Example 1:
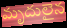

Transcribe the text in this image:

మృదులైన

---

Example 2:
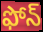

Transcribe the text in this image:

ఫోన్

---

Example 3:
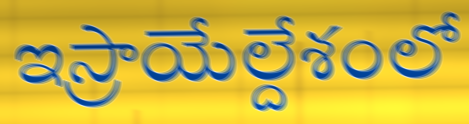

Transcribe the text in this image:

ఇస్రాయేల్దేశంలో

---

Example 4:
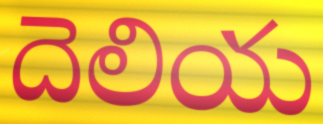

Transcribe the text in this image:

దెలియ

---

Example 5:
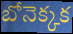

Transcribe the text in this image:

బోనెక్కక